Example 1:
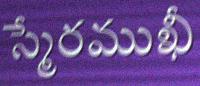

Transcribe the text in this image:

స్మేరముఖీ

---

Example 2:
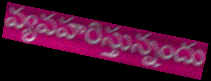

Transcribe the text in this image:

వ్యవహరిస్తున్నందు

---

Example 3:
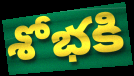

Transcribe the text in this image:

శోభకి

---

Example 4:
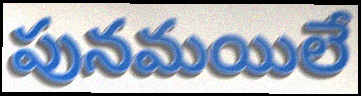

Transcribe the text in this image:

పునమయిలే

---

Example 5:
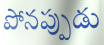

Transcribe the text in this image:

పోనప్పుడు